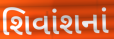
શિવાંશનાં